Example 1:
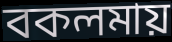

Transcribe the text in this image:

বকলমায়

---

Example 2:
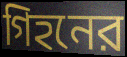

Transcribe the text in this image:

গিহনের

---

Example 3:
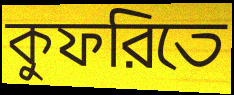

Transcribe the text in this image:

কুফরিতে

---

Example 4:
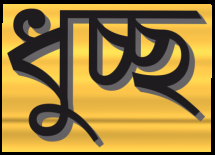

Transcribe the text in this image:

ধুচ্ছ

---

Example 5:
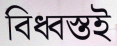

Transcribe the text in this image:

বিধ্বস্তই